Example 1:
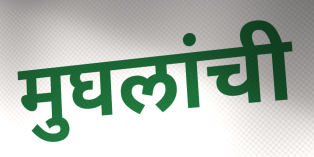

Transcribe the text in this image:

मुघलांची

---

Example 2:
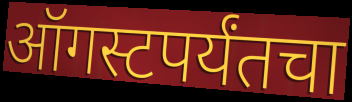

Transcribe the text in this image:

ऑगस्टपर्यंतचा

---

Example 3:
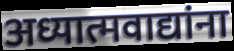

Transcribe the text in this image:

अध्यात्मवाद्यांना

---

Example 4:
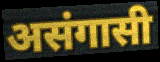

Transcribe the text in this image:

असंगासी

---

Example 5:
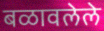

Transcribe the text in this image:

बळावलेले